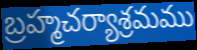
బ్రహ్మచర్యాశ్రమము